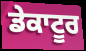
ਡੇਕਾਟੂਰ